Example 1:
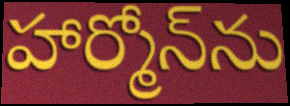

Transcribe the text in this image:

హార్మోన్‌ను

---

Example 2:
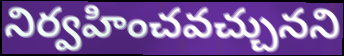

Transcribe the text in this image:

నిర్వహించవచ్చునని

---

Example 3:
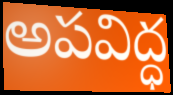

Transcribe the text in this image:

అపవిద్ధ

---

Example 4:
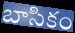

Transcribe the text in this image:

బాసికం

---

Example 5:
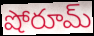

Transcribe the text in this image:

షోరూమ్